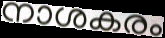
നാശകരം